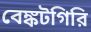
বেঙ্কটগিরি